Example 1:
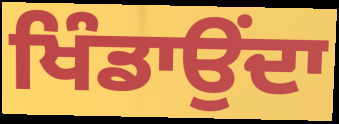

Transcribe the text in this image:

ਖਿੰਡਾਉਂਦਾ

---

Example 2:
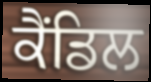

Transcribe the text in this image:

ਕੈਂਡਿਲ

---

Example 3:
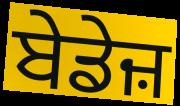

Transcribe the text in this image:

ਬੇਡੇਜ਼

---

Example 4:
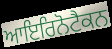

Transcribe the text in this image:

ਆਇਰਿਨੋਟੈਕਨ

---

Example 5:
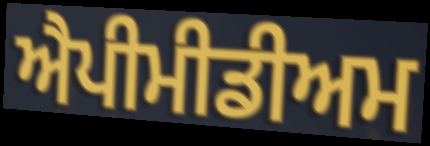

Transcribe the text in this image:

ਐਪੀਮੀਡੀਅਮ